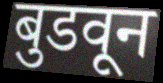
बुडवून